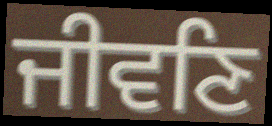
ਜੀਵਣਿ